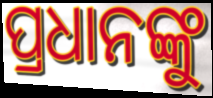
ପ୍ରଧାନଙ୍କୁ